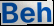
Beh